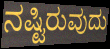
ನಷ್ಟಿರುವುದು